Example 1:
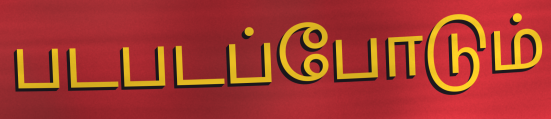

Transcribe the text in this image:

படபடப்போடும்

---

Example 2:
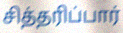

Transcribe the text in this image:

சித்தரிப்பார்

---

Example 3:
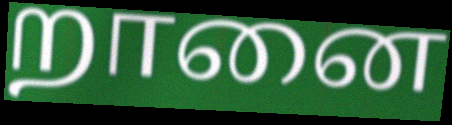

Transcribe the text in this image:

றானை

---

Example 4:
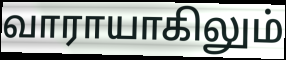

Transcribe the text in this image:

வாராயாகிலும்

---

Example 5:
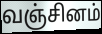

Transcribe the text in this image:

வஞ்சினம்